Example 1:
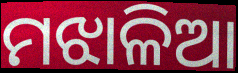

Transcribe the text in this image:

ମଝାଳିଆ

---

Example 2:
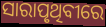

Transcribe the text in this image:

ସାରାପୃଥିବୀରେ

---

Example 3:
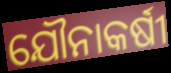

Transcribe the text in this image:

ଯୌନାକର୍ଷୀ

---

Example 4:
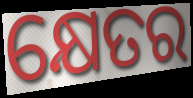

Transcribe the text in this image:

କ୍ଷେତର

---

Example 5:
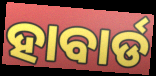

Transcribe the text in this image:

ହାବାର୍ଡ